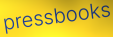
pressbooks